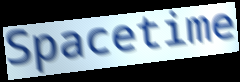
Spacetime